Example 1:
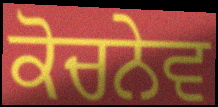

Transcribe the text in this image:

ਕੋਚਨੇਵ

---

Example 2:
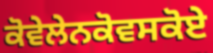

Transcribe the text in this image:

ਕੋਵੇਲੇਨਕੋਵਸਕੋਏ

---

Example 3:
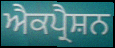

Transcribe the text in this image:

ਐਕਪ੍ਰੈਸ਼ਨ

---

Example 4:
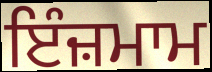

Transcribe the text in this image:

ਇੰਜ਼ਮਾਮ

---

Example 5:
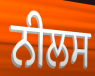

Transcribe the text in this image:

ਨੀਲਸ